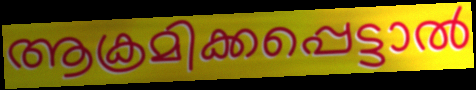
ആക്രമിക്കപ്പെട്ടാൽ